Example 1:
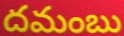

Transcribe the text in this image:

దమంబు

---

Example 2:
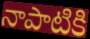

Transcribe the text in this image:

నాపాటికి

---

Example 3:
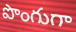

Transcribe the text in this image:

పొంగుగా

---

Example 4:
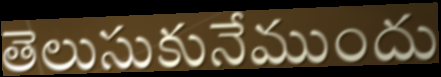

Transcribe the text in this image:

తెలుసుకునేముందు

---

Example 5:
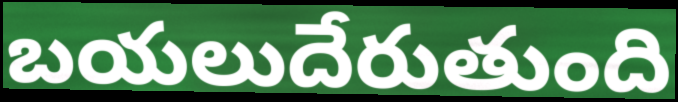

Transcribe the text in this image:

బయలుదేరుతుంది